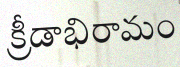
క్రీడాభిరామం